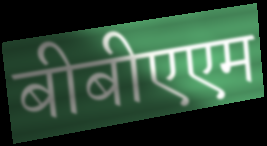
बीबीएएम